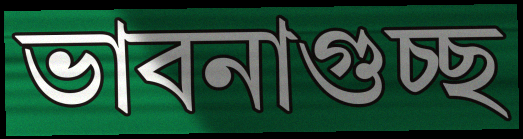
ভাবনাগুচ্ছ